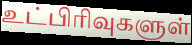
உட்பிரிவுகளுள்